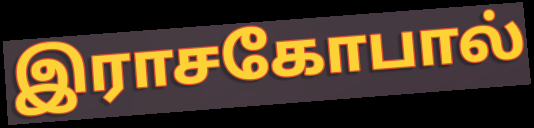
இராசகோபால்